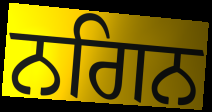
ਨਗਿਨ